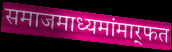
समाजमाध्यमांमार्फत